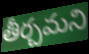
తీర్చమని